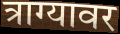
त्राग्यावर